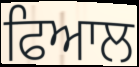
ਫਿਆਲ